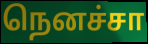
நெனச்சா